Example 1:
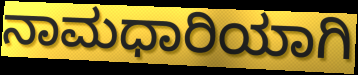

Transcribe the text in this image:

ನಾಮಧಾರಿಯಾಗಿ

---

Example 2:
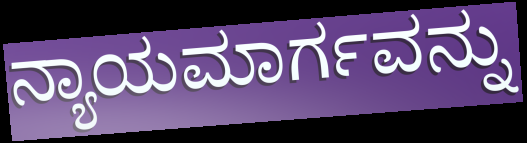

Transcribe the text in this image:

ನ್ಯಾಯಮಾರ್ಗವನ್ನು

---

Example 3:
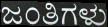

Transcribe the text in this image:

ಜಂತಿಗಳು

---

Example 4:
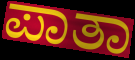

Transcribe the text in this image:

ಪಾತಾ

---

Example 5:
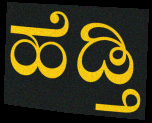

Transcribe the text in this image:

ಹೆಡ್ತಿ